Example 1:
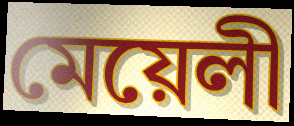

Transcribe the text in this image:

মেয়েলী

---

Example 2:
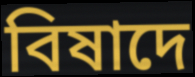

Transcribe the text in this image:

বিষাদে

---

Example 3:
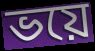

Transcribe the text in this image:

ভয়ে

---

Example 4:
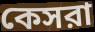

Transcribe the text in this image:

কেসরা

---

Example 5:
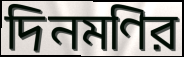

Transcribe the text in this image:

দিনমণির